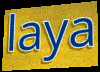
laya